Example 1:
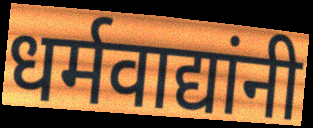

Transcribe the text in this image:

धर्मवाद्यांनी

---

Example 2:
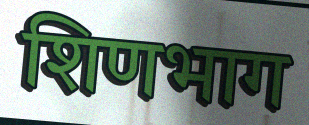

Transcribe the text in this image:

शिणभाग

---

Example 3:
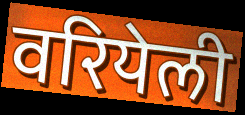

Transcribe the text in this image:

वरियेली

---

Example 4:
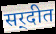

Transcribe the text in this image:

सर्दीत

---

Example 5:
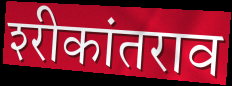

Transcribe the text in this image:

श्रीकांतराव